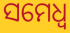
ସମେଧ୍ୱ